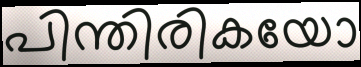
പിന്തിരികയോ